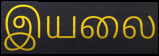
இயலை